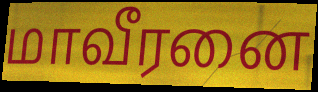
மாவீரனை